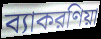
ব্যাকরণিয়া